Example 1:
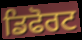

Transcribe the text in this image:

ਡਿਫੋਰਟ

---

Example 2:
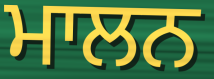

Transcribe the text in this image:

ਮਾਲਨ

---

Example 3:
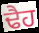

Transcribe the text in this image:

ਢੈਹ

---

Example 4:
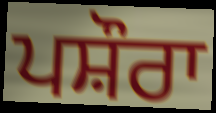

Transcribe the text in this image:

ਪਸ਼ੌਰਾ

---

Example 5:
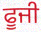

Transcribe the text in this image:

ਫੂਜੀ